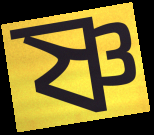
ষ্ণ